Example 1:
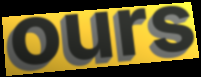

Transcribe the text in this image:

ours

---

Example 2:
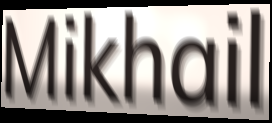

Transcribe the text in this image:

Mikhail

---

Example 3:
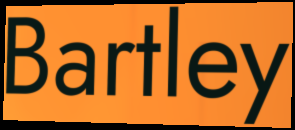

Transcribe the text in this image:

Bartley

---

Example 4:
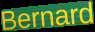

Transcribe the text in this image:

Bernard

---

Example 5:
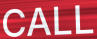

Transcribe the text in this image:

CALL